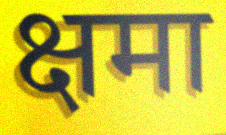
क्षमा